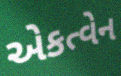
એકત્વેન